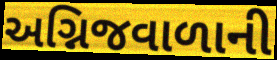
અગ્નિજવાળાની